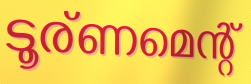
ടൂര്ണമെന്റ്